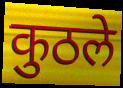
कुठले